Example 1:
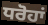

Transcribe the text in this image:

ਧਰੋਹਾਂ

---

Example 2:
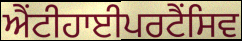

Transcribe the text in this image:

ਐਂਟੀਹਾਈਪਰਟੈਂਸਿਵ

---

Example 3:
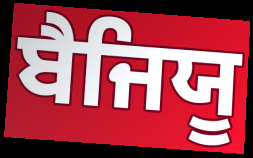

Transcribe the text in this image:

ਬੈਜਿਯੂ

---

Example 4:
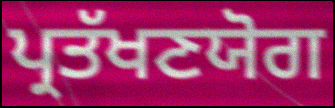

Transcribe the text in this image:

ਪ੍ਰਤੱਖਣਯੋਗ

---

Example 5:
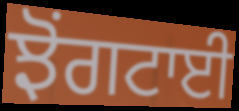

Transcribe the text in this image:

ਝੋਂਗਟਾਈ